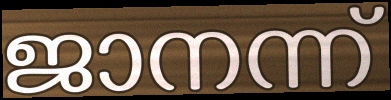
ജാനന്ന്